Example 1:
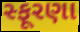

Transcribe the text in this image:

સ્ફૂરણા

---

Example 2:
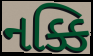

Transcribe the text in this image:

નક્કિ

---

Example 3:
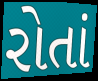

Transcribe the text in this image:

રોતાં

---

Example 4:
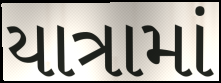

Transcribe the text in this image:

યાત્રામાં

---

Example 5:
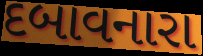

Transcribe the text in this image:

દબાવનારા